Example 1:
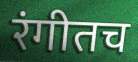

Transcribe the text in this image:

रंगीतच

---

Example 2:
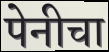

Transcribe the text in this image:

पेनीचा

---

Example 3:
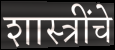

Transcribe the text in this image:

शास्त्रींचे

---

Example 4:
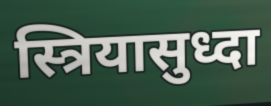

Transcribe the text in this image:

स्त्रियासुध्दा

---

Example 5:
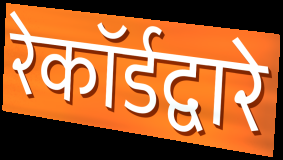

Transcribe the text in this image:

रेकॉर्डद्वारे